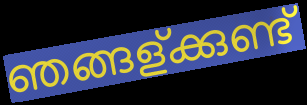
ഞങ്ങള്ക്കുണ്ട്